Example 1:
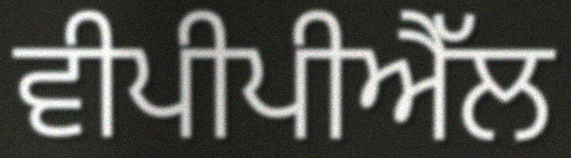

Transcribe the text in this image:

ਵੀਪੀਪੀਐੱਲ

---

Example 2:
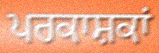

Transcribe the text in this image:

ਪਰਕਾਸ਼ਕਾਂ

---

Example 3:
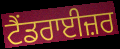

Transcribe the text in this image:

ਟੈਂਡਰਾਈਜ਼ਰ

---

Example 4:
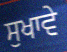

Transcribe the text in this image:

ਸੁਖਾਵੇ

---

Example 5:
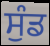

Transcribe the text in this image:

ਸੁੰਡ